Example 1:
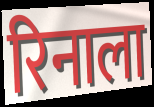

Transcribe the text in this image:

रिनाला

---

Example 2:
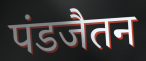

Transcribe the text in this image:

पंडजैतन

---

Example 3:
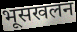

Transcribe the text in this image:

भूसखलन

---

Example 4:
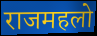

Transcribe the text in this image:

राजमहलो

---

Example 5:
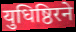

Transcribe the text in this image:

युधिष्ठिरने